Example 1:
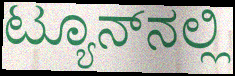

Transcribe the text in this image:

ಟ್ಯೂನ್‌ನಲ್ಲಿ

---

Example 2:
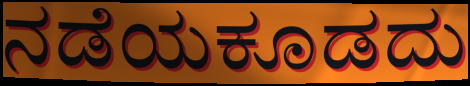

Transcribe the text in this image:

ನಡೆಯಕೂಡದು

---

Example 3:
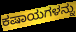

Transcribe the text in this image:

ಕಷಾಯಗಳನ್ನು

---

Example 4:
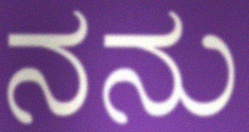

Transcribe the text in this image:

ನನು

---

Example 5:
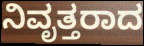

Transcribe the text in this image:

ನಿವೃತ್ತರಾದ